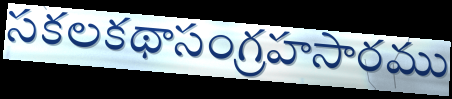
సకలకథాసంగ్రహసారము